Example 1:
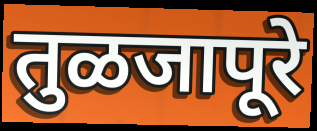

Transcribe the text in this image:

तुळजापूरे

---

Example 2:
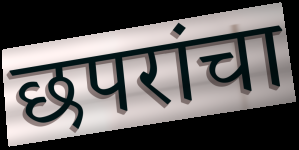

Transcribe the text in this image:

छपरांचा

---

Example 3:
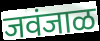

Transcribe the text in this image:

जवंजाळ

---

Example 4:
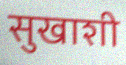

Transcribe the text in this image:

सुखाशी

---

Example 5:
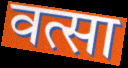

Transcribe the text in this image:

वत्सा